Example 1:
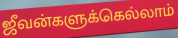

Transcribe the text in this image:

ஜீவன்களுக்கெல்லாம்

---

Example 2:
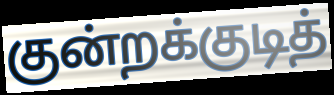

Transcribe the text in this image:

குன்றக்குடித்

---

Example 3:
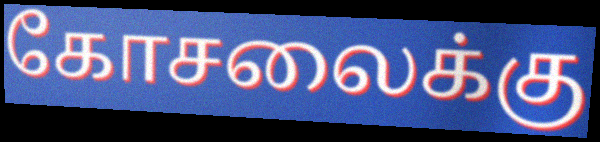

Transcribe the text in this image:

கோசலைக்கு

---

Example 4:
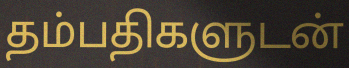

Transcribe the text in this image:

தம்பதிகளுடன்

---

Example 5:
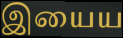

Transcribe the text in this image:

இயைய